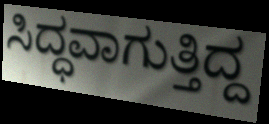
ಸಿದ್ಧವಾಗುತ್ತಿದ್ದ